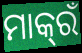
ମାକ୍‌ରଁ